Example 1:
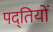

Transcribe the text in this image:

पद्तियों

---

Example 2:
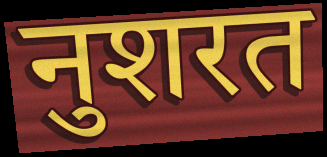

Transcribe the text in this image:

नुशरत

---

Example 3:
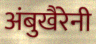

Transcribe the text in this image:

अंबुखैरेनी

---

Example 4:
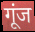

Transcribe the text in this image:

गूंज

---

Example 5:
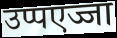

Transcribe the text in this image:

उप्पएज्जा